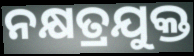
ନକ୍ଷତ୍ରଯୁକ୍ତ